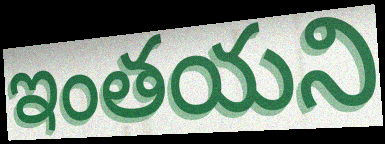
ఇంతయని